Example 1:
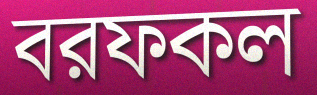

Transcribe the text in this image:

বরফকল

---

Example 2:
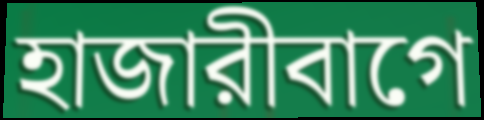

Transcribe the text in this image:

হাজারীবাগে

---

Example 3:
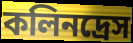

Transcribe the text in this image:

কলিনদ্রেস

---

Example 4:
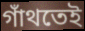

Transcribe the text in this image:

গাঁথতেই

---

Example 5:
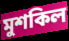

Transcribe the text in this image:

মুশকিল